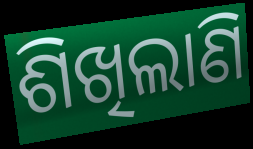
ଶିଖିଲାଣି